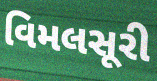
વિમલસૂરી